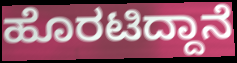
ಹೊರಟಿದ್ದಾನೆ